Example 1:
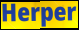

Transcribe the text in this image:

Herper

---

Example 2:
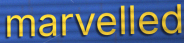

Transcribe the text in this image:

marvelled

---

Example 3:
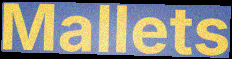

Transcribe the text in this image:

Mallets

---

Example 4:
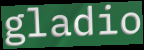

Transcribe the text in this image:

gladio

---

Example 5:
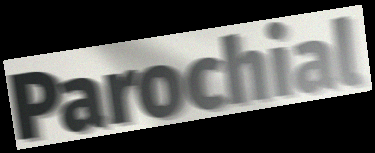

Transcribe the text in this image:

Parochial